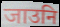
जाउनि